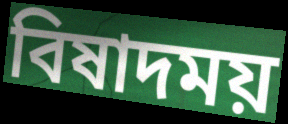
বিষাদময়